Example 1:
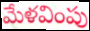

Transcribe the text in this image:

మేళవింపు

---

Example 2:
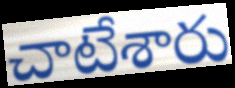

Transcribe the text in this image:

చాటేశారు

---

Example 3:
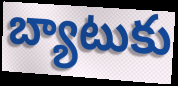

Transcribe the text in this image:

బ్యాటుకు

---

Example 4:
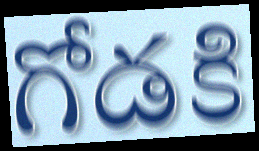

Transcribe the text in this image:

గోడకి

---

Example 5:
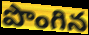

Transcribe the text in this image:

పొంగిన